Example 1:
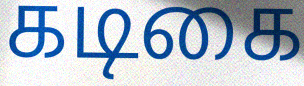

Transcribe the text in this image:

கடிகை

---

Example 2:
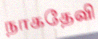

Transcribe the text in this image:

நாகதேவி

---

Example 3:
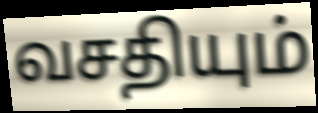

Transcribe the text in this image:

வசதியும்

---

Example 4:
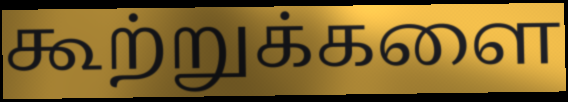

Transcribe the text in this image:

கூற்றுக்களை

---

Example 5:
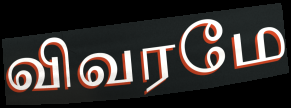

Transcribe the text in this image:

விவரமே